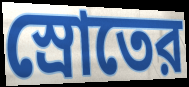
স্রোতের